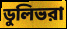
ডুলিভরা